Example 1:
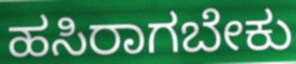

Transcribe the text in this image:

ಹಸಿರಾಗಬೇಕು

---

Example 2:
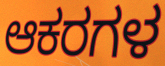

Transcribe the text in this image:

ಆಕರಗಳ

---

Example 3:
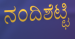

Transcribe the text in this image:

ನಂದಿಶೆಟ್ಟಿ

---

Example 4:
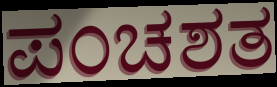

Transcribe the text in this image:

ಪಂಚಶತ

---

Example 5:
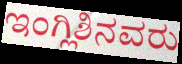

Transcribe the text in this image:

ಇಂಗ್ಲಿಶಿನವರು